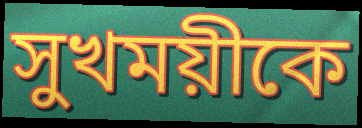
সুখময়ীকে